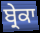
ਬ੍ਰੇਕਾ